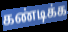
கண்டிக்க